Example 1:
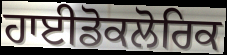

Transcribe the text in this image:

ਹਾਈਡੋਕਲੋਰਿਕ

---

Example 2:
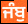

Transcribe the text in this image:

ਜੰਬੁ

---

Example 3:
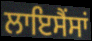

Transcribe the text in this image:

ਲਾਇਸੈਂਸਾਂ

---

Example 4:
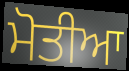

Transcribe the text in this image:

ਮੋਤੀਆ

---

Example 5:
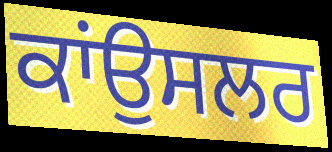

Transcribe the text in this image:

ਕਾਂਉਸਲਰ